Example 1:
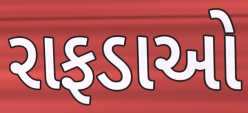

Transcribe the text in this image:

રાફડાઓ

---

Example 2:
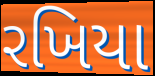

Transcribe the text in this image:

રખિયા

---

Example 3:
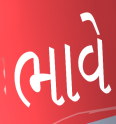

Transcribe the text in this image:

ભાવે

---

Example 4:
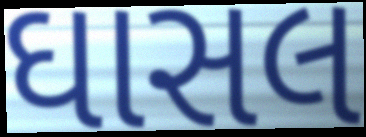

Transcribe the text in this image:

ઘાસલ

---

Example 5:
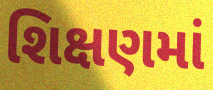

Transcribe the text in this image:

શિક્ષણમાં